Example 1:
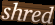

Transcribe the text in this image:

shred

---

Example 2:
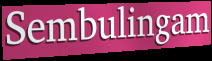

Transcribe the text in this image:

Sembulingam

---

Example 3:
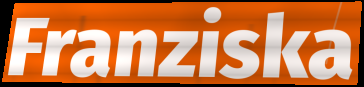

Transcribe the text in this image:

Franziska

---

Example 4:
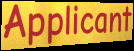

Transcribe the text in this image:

Applicant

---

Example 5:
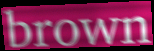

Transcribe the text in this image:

brown